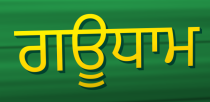
ਗਊਧਾਮ